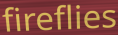
fireflies